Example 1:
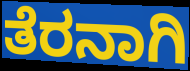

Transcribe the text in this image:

ತೆರನಾಗಿ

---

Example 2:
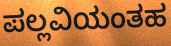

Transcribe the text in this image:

ಪಲ್ಲವಿಯಂತಹ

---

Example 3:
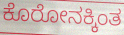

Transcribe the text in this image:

ಕೊರೋನಕ್ಕಿಂತ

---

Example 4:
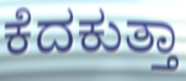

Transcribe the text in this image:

ಕೆದಕುತ್ತಾ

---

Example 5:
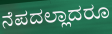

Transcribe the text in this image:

ನೆಪದಲ್ಲಾದರೂ